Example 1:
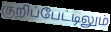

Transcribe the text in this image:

குறிப்பேட்டிலும்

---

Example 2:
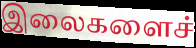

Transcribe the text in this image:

இலைகளைச்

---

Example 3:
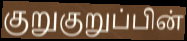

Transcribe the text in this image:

குறுகுறுப்பின்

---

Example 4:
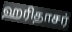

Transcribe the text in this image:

ஹரிதாசர்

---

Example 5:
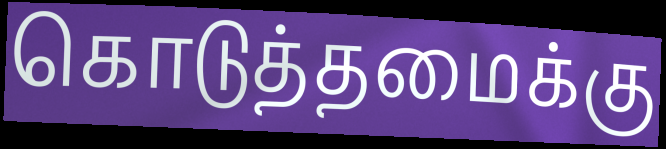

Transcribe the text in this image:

கொடுத்தமைக்கு